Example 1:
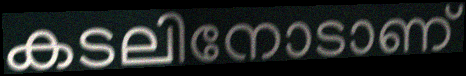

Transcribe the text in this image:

കടലിനോടാണ്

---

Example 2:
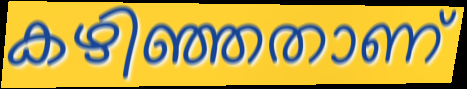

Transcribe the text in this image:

കഴിഞ്ഞതാണ്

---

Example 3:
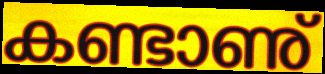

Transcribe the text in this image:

കണ്ടാണു്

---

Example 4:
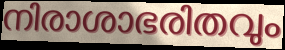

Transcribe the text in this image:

നിരാശാഭരിതവും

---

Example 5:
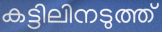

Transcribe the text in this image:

കട്ടിലിനടുത്ത്